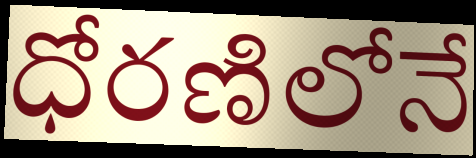
ధోరణిలోనే